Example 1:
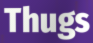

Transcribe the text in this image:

Thugs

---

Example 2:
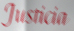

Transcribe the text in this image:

Justicia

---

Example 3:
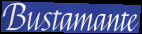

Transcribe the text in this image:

Bustamante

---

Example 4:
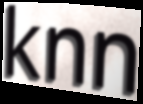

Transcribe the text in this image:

knn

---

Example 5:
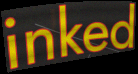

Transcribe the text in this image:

inked